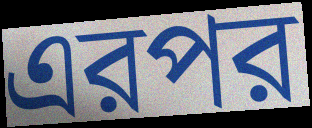
এরপর